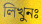
লিখুনঃ